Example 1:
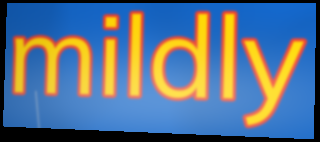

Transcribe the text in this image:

mildly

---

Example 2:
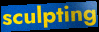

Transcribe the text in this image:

sculpting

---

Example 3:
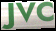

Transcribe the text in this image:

JVC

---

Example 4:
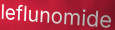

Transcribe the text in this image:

leflunomide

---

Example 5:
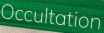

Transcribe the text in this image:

Occultation